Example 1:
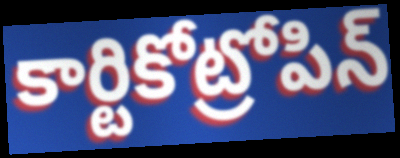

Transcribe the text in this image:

కార్టికోట్రోపిన్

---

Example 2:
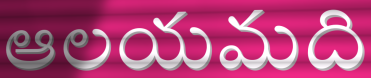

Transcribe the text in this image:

ఆలయమది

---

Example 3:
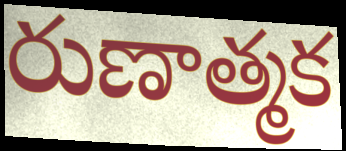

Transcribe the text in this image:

రుణాత్మక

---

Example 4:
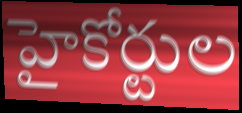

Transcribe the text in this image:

హైకోర్టుల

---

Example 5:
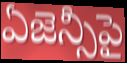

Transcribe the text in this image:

ఏజెన్సీపై